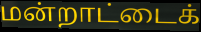
மன்றாட்டைக்